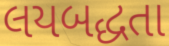
લયબદ્ધતા